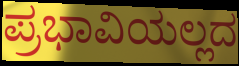
ಪ್ರಭಾವಿಯಲ್ಲದ